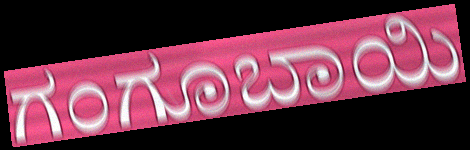
ಗಂಗೂಬಾಯಿ